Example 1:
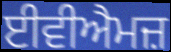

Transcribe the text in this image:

ਈਵੀਐਮਜ਼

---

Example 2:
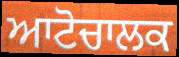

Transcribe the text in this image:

ਆਟੋਚਾਲਕ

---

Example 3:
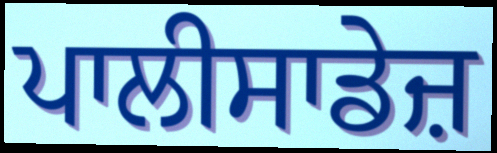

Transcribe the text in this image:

ਪਾਲੀਸਾਡੇਜ਼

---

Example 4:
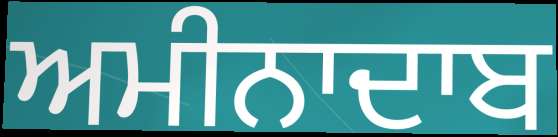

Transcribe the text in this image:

ਅਮੀਨਾਦਾਬ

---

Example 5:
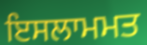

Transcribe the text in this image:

ਇਸਲਾਮਮਤ